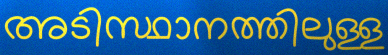
അടിസ്ഥാനത്തിലുള്ള